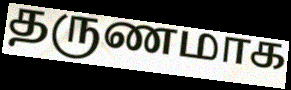
தருணமாக